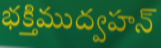
భక్తిముద్వహన్